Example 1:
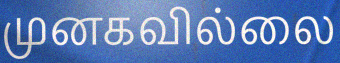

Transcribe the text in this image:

முனகவில்லை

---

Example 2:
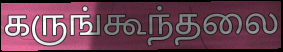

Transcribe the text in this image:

கருங்கூந்தலை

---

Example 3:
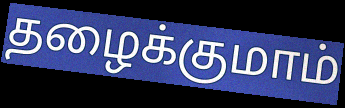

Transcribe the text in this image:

தழைக்குமாம்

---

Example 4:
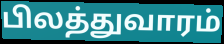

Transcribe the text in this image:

பிலத்துவாரம்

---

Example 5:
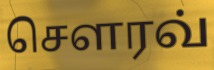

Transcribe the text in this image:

சௌரவ்